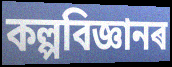
কল্পবিজ্ঞানৰ